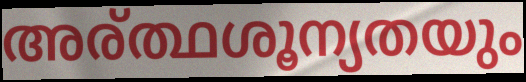
അര്ത്ഥശൂന്യതയും